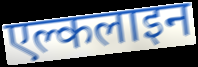
एल्कलाइन